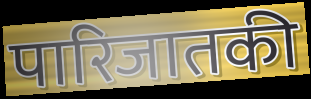
पारिजातकी